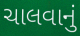
ચાલવાનું